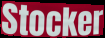
Stocker